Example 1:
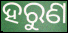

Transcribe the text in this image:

ହରୁଣ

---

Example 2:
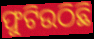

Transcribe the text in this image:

ଫୁଟିଉଠିଛି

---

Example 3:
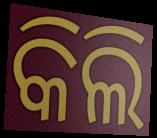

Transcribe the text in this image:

କିଲି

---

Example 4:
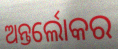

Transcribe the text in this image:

ଅନ୍ତର୍ଲୋକର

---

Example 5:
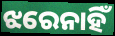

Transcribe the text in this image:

ଝରେନାହିଁ